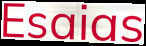
Esaias